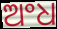
ଅଂଧ